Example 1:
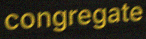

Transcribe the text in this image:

congregate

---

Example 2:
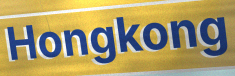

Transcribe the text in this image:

Hongkong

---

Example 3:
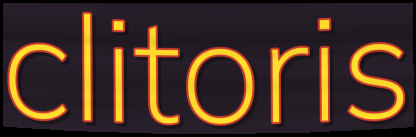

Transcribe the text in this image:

clitoris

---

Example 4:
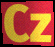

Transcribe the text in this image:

Cz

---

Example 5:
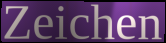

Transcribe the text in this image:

Zeichen